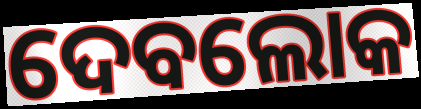
ଦେବଲୋକ